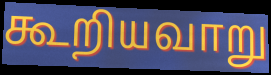
கூறியவாறு